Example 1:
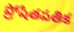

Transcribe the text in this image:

ప్రోషితపతిక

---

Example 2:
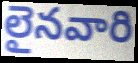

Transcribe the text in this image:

లైనవారి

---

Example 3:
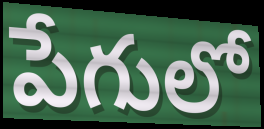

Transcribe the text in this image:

పేగులో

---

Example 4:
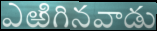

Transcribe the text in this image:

ఎఱిగినవాడు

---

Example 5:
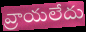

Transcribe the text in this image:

వ్రాయలేదు